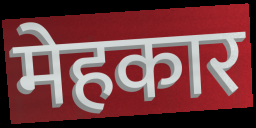
मेहकार